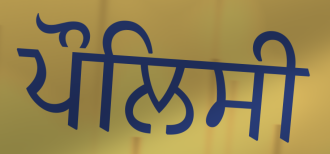
ਪੌਲਿਸੀ